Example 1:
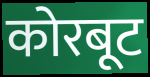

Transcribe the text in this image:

कोरबूट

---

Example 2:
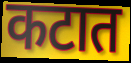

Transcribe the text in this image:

कटात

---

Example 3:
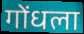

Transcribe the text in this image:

गोंधला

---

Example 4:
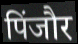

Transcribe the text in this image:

पिंजौर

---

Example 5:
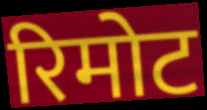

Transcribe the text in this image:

रिमोट